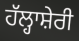
ਹੱਲ੍ਹਾਸ਼ੇਰੀ